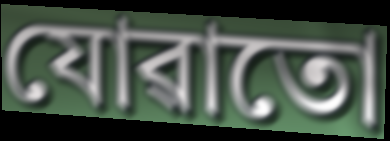
যোৱাতো